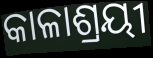
କାଳାଶ୍ରୟୀ